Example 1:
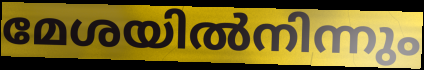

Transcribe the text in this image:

മേശയിൽനിന്നും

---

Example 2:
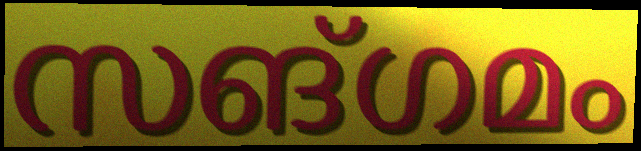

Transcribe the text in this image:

സങ്ഗമം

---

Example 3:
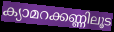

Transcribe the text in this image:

ക്യാമറക്കണ്ണിലൂട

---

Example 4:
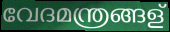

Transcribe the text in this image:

വേദമന്ത്രങ്ങള്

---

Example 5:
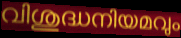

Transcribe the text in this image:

വിശുദ്ധനിയമവും